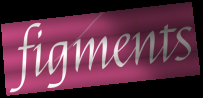
figments